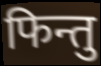
फिन्तु